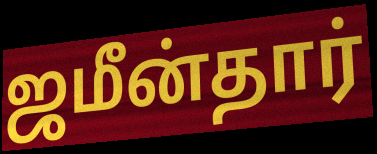
ஜமீன்தார்